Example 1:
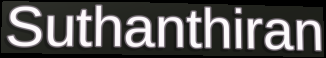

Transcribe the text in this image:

Suthanthiran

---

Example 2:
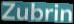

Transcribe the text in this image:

Zubrin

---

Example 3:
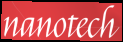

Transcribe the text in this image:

nanotech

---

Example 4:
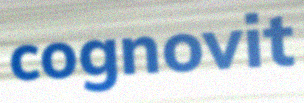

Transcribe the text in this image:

cognovit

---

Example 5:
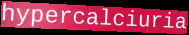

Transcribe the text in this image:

hypercalciuria